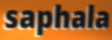
saphala